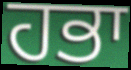
ਹਭਾ